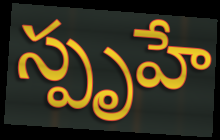
స్పృహే